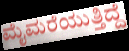
ಮೈಮರೆಯುತ್ತಿದ್ದೆ